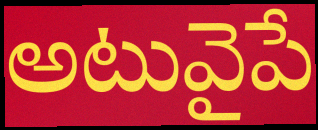
అటువైపే